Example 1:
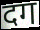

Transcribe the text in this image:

दग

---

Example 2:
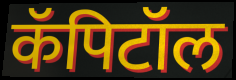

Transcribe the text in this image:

कॅपिटॉल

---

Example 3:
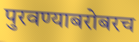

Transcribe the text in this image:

पुरवण्याबरोबरच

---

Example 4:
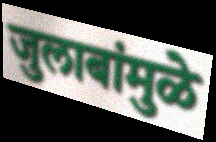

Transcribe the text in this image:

जुलाबांमुळे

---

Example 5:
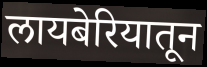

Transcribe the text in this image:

लायबेरियातून